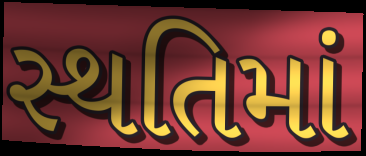
સ્થતિમાં